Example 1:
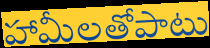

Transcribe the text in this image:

హామీలతోపాటు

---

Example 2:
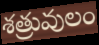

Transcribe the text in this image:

శత్రువులం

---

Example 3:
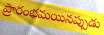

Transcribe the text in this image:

ప్రారంభమయినప్పుడు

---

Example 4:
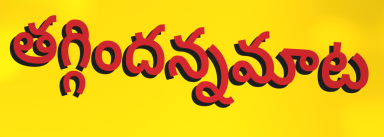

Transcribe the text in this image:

తగ్గిందన్నమాట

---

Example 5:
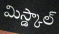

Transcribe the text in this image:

మిస్డ్కాల్